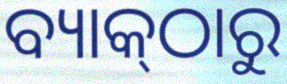
ବ୍ୟାକ୍‌ଠାରୁ